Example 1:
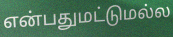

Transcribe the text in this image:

என்பதுமட்டுமல்ல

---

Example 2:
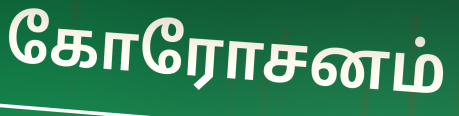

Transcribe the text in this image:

கோரோசனம்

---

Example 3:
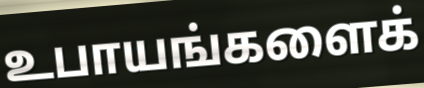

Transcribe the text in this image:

உபாயங்களைக்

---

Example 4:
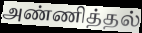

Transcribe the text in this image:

அண்ணித்தல்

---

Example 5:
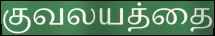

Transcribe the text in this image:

குவலயத்தை